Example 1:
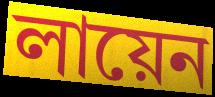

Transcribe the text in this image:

লায়েন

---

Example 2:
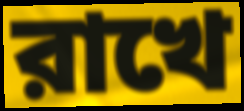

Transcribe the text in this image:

রাখে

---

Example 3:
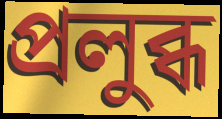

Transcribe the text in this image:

প্রলুব্ধ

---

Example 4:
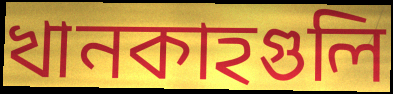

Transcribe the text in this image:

খানকাহগুলি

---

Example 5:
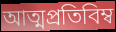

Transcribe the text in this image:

আত্মপ্রতিবিম্ব